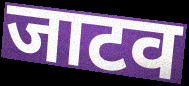
जाटव